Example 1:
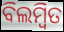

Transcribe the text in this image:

ବିଲମ୍ୱିତ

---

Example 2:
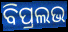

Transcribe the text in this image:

ବିପ୍ରଲଭ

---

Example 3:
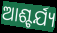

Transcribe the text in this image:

ଆଶ୍ଚର୍ଯ୍ୟ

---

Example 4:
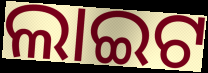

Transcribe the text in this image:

ଲାଇଟ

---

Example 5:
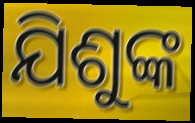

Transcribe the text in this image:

ଯିଶୁଙ୍କ